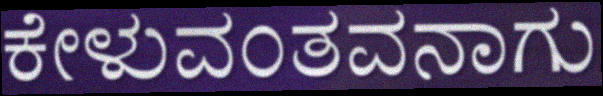
ಕೇಳುವಂತವನಾಗು